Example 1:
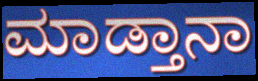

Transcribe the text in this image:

ಮಾಡ್ತಾನಾ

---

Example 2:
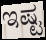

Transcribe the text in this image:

ಇಷ್ಟ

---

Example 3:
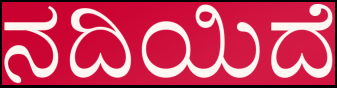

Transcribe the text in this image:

ನದಿಯಿದೆ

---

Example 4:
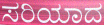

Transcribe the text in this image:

ಸರಿಯಾದ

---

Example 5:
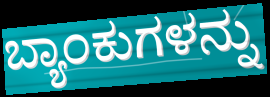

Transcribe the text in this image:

ಬ್ಯಾಂಕುಗಳನ್ನು